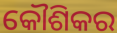
କୌଶିକର